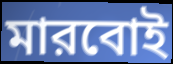
মারবোই